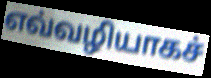
எவ்வழியாகச்